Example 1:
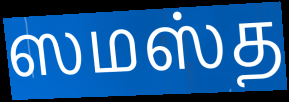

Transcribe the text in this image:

ஸமஸ்த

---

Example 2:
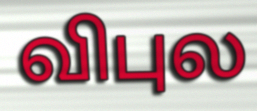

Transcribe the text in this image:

விபுல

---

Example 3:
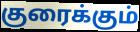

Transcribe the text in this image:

குரைக்கும்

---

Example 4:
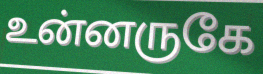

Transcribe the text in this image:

உன்னருகே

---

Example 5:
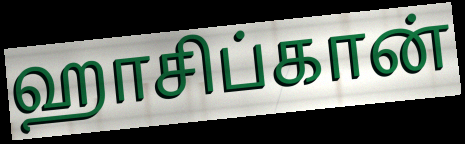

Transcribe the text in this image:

ஹாசிப்கான்